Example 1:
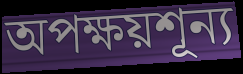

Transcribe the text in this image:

অপক্ষয়শূন্য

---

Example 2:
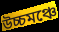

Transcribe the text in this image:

উচ্চমঞ্চে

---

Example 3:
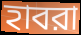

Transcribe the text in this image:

হাবরা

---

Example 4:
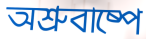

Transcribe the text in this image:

অশ্রুবাষ্পে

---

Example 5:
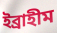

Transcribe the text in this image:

ইব্রাহীম